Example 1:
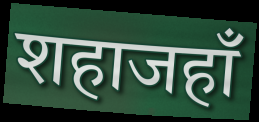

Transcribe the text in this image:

शहाजहाँ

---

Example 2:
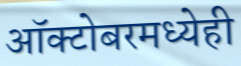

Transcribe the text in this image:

ऑक्टोबरमध्येही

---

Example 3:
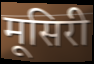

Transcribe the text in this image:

मूसिरी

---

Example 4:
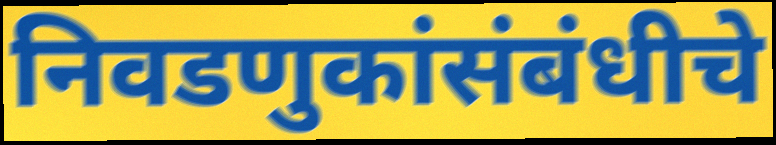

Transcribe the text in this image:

निवडणुकांसंबंधीचे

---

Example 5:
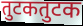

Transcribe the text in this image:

तुटकतुटक